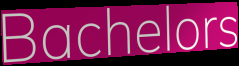
Bachelors